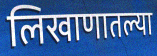
लिखाणातल्या